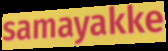
samayakke